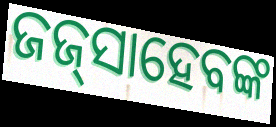
ଜଜ୍‌ସାହେବଙ୍କ